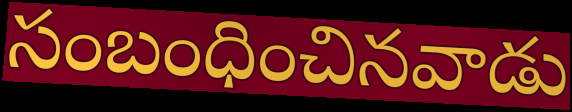
సంబంధించినవాడు